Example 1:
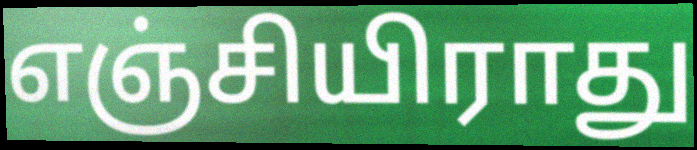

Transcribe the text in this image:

எஞ்சியிராது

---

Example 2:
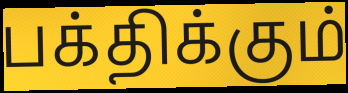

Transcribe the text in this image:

பக்திக்கும்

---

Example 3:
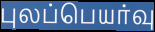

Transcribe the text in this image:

புலப்பெயர்வு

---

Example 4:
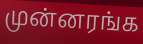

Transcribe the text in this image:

முன்னரங்க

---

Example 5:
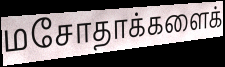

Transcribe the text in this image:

மசோதாக்களைக்